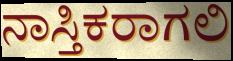
ನಾಸ್ತಿಕರಾಗಲಿ